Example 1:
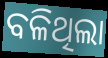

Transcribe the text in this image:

ବଳିଥିଲା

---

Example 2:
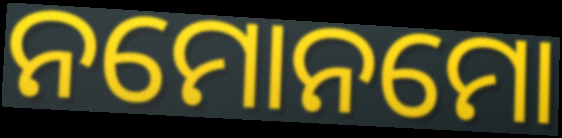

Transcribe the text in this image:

ନମୋନମୋ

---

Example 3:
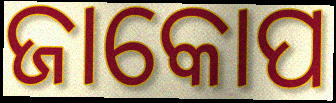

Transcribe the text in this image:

ଜାକୋପ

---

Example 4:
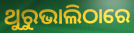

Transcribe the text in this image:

ଥୁରୁଭାଲିଠାରେ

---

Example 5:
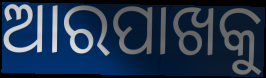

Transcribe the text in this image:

ଆରପାଖକୁ